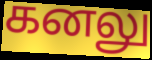
கனலு